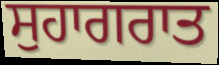
ਸੁਹਾਗਰਾਤ